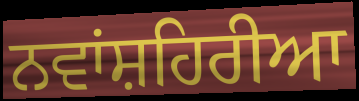
ਨਵਾਂਸ਼ਹਿਰੀਆ